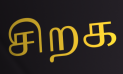
சிறக